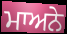
ਮਾਅਨੇ